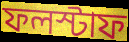
ফলস্টাফ